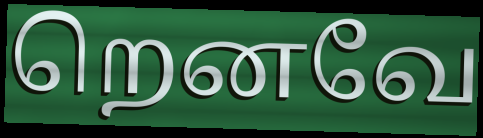
றெனவே